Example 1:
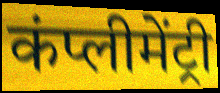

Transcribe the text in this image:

कंप्लीमेंट्री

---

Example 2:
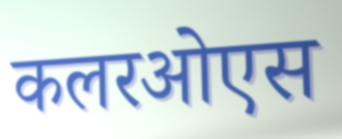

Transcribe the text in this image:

कलरओएस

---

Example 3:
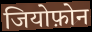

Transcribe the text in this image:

जियोफ़ोन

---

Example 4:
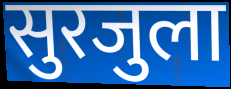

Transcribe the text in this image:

सुरजुला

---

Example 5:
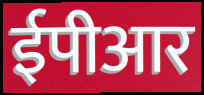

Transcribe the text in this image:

ईपीआर